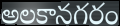
అలకానగరం